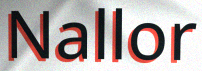
Nallor